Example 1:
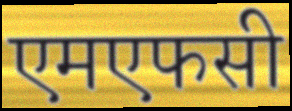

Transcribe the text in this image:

एमएफसी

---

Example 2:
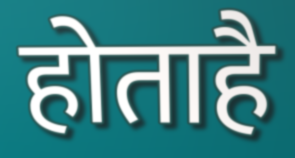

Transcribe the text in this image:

होताहै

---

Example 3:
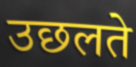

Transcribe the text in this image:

उछलते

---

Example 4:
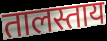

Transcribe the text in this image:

तालस्ताय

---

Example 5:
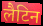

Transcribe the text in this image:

लैटिन